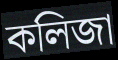
কলিজা